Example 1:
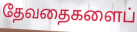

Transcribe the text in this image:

தேவதைகளைப்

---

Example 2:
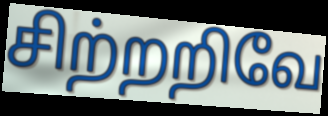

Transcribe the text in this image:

சிற்றறிவே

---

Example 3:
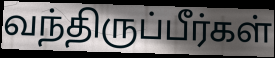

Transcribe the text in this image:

வந்திருப்பீர்கள்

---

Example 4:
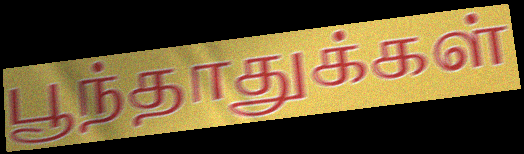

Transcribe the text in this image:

பூந்தாதுக்கள்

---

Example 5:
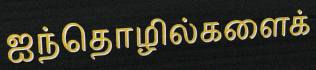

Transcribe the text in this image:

ஐந்தொழில்களைக்